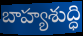
బాహ్యశుద్ధి